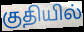
குதியில்